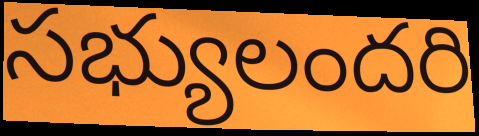
సభ్యులందరి